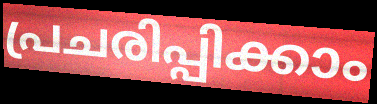
പ്രചരിപ്പിക്കാം